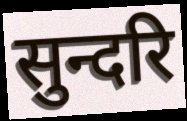
सुन्दरि